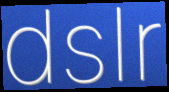
dslr